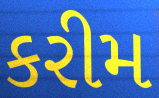
કરીમ